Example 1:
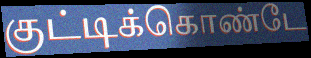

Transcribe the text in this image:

குட்டிக்கொண்டே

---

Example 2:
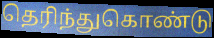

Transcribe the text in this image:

தெரிந்துகொண்டு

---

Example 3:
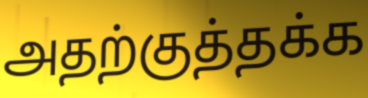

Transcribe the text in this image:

அதற்குத்தக்க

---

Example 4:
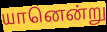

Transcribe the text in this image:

யானென்று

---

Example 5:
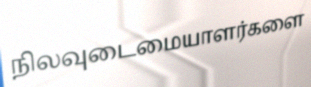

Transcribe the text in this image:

நிலவுடைமையாளர்களை